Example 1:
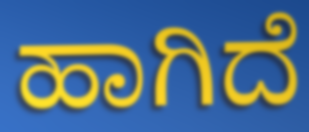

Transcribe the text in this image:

ಹಾಗಿದೆ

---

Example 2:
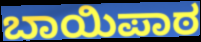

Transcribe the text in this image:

ಬಾಯಿಪಾಠ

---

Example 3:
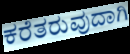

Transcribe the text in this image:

ಕರೆತರುವುದಾಗಿ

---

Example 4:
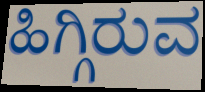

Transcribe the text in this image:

ಹಿಗ್ಗಿರುವ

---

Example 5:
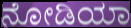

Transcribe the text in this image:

ನೋಡಿಯಾ